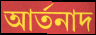
আর্তনাদ